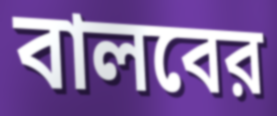
বালবের